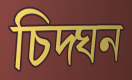
চিদ্ঘন